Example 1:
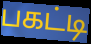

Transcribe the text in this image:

பகட்டி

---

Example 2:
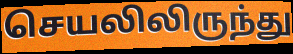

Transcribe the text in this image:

செயலிலிருந்து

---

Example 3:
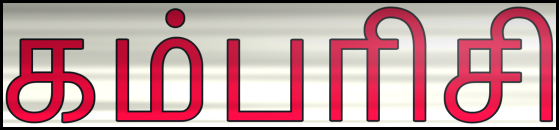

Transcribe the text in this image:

கம்பரிசி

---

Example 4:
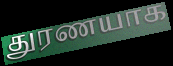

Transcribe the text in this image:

துரணயாக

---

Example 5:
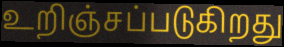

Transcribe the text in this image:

உறிஞ்சப்படுகிறது